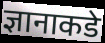
ज्ञानाकडे